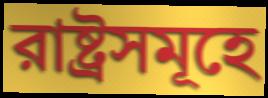
রাষ্ট্রসমূহে